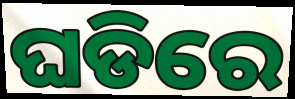
ଘଡିରେ